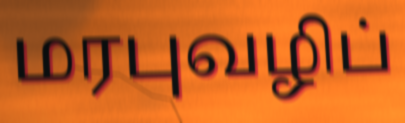
மரபுவழிப்